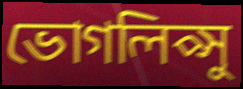
ভোগলিপ্সু